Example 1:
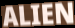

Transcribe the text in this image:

ALIEN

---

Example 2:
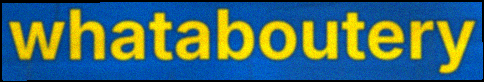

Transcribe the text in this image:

whataboutery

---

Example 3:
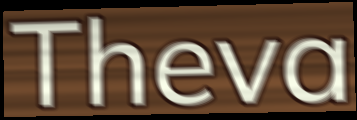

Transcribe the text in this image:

Theva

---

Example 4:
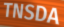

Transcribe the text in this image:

TNSDA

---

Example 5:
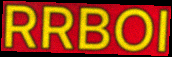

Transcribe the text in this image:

RRBOl